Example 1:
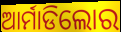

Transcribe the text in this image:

ଆର୍ମାଡିଲୋର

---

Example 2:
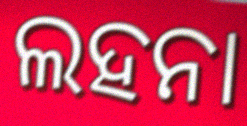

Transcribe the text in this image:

ଲହନା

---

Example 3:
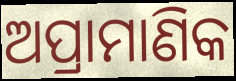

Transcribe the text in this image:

ଅପ୍ରାମାଣିକ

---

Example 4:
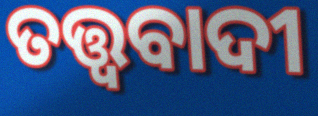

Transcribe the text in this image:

ତତ୍ତ୍ଵବାଦୀ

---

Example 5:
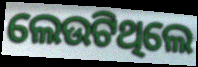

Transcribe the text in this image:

ଲେଉଟିଥିଲେ